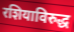
रशियाविरुद्ध